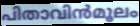
പിതാവിൻമൂലം